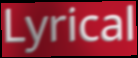
Lyrical